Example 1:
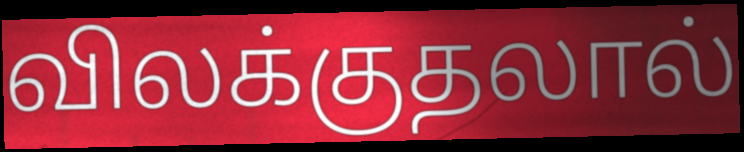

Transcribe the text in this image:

விலக்குதலால்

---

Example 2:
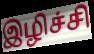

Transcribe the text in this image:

இழிச்சி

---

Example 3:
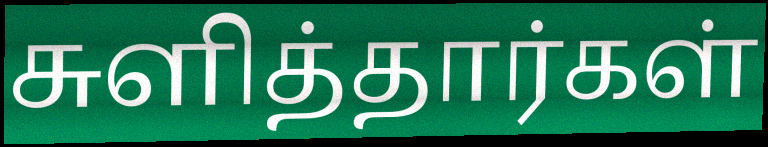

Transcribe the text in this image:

சுளித்தார்கள்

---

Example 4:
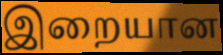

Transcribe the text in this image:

இறையான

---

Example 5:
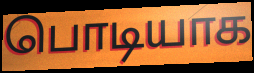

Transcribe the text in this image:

பொடியாக